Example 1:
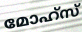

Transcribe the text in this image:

മോഹ്സ്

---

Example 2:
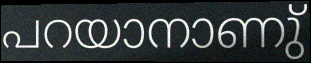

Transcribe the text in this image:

പറയാനാണു്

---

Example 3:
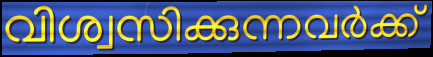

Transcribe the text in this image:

വിശ്വസിക്കുന്നവർക്ക്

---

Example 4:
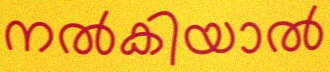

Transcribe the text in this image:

നൽകിയാൽ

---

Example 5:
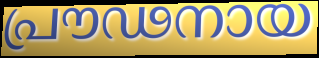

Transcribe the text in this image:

പ്രൗഢനായ